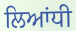
ਲਿਆਂਧੀ